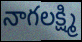
నాగలక్ష్మి